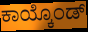
ಕಾಯ್ಕೊಂಡ್